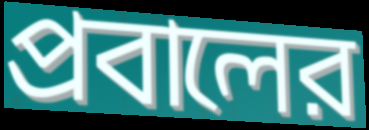
প্রবালের